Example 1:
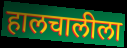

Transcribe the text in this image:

हालचालीला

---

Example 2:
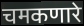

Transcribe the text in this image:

चमकणारे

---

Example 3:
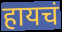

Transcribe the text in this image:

हायचं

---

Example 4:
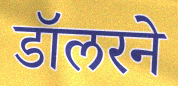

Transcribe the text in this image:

डॉलरने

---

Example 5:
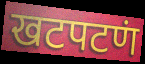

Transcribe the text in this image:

खटपटणं